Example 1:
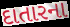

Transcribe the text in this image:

દાતારના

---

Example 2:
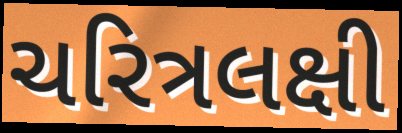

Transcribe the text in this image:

ચરિત્રલક્ષી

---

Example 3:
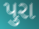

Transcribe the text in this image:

પુરા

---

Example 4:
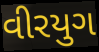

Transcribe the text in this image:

વીરયુગ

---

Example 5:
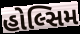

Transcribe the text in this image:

હોલ્સિમ